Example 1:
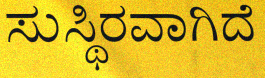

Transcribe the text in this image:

ಸುಸ್ಥಿರವಾಗಿದೆ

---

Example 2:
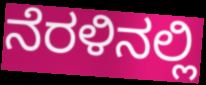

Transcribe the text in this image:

ನೆರಳಿನಲ್ಲಿ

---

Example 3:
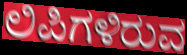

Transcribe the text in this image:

ಲಿಪಿಗಳಿರುವ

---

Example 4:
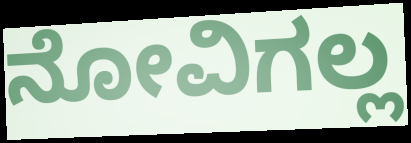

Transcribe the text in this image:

ನೋವಿಗಲ್ಲ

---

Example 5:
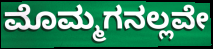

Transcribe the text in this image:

ಮೊಮ್ಮಗನಲ್ಲವೇ